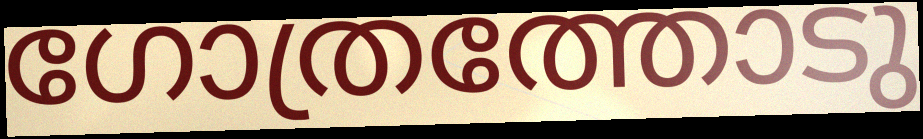
ഗോത്രത്തോടു